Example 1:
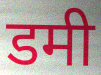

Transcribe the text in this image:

डमी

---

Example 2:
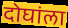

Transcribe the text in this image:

दोघांला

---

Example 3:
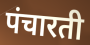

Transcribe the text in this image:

पंचारती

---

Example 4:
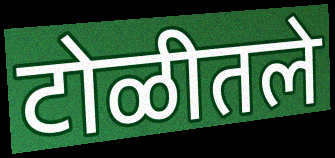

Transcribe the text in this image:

टोळीतले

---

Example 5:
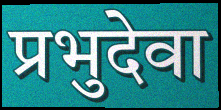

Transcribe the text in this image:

प्रभुदेवा